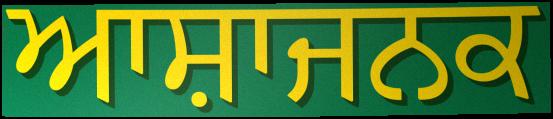
ਆਸ਼ਾਜਨਕ